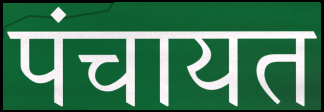
पंचायत